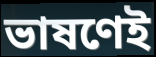
ভাষণেই